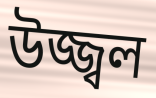
উজ্জ্বল